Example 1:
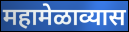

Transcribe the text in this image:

महामेळाव्यास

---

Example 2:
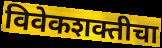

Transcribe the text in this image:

विवेकशक्तीचा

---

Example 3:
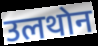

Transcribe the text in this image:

उलथोन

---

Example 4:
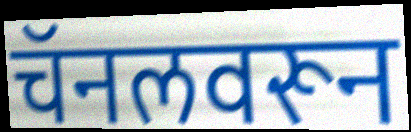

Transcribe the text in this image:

चॅनलवरून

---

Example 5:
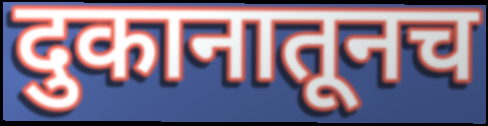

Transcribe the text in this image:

दुकानातूनच